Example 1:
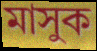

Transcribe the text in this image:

মাসুক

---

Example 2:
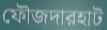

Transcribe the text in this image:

ফৌজদারহাট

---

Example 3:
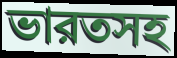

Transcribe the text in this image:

ভারতসহ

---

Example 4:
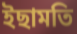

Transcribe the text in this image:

ইছামতি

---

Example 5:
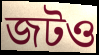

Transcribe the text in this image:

জটও